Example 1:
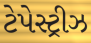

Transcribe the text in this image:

ટેપેસ્ટ્રીઝ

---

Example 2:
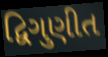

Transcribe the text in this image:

દ્વિગુણીત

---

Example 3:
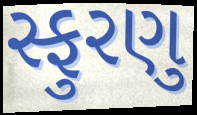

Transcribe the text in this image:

સ્ફુરણુ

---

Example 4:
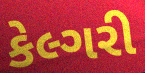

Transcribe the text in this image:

કેલ્ગરી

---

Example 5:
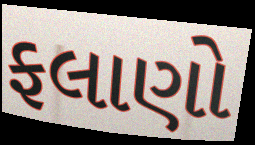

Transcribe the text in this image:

ફલાણો